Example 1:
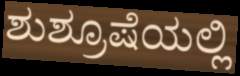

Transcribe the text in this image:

ಶುಶ್ರೂಷೆಯಲ್ಲಿ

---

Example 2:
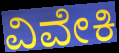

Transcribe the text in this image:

ವಿವೇಕಿ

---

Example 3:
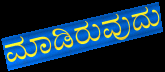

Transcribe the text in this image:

ಮಾಡಿರುವುದು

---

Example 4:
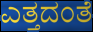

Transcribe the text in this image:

ಎತ್ತದಂತೆ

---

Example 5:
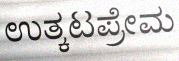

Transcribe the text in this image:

ಉತ್ಕಟಪ್ರೇಮ